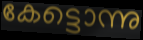
കേട്ടൊന്നു